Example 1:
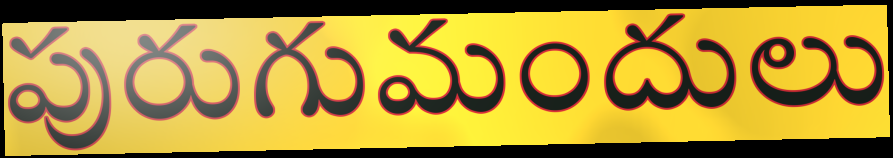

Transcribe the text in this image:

పురుగుమందులు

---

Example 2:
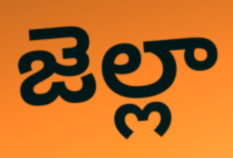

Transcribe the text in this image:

జెల్లా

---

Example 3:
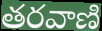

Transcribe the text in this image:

తరవాణి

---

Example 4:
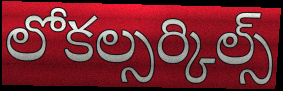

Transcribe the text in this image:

లోకల్సర్కిల్స్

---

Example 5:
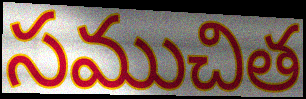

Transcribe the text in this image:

సముచిత